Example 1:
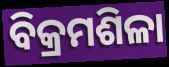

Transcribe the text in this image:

ବିକ୍ରମଶିଳା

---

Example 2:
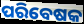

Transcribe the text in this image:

ପରିବେଷକ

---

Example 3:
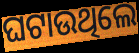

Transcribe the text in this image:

ଘଟାଉଥିଲେ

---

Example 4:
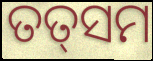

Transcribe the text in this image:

ତତ୍‍ସମ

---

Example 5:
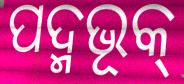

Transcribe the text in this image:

ପଦ୍ମଭୂକ୍